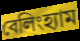
বেলিংহ্যাম